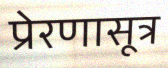
प्रेरणासूत्र